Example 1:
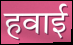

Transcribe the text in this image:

हवाई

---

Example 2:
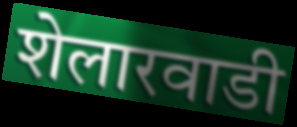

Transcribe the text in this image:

शेलारवाडी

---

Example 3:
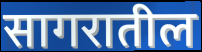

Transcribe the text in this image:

सागरातील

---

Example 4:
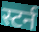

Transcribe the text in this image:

स्टर्न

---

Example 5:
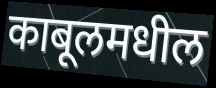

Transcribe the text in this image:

काबूलमधील